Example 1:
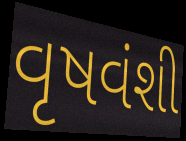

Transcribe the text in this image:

વૃષવંશી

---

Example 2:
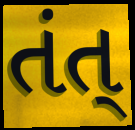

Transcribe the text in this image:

તંત્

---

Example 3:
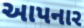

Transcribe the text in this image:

આપનાર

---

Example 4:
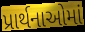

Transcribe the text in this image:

પ્રાર્થનાઓમાં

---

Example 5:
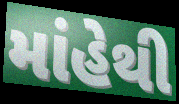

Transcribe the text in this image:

માંહેથી